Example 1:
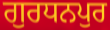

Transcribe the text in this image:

ਗੁਰਧਨਪੁਰ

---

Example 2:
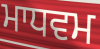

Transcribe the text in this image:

ਮਾਧਵਮ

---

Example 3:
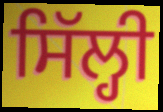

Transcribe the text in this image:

ਸਿੱਲ੍ਹੀ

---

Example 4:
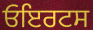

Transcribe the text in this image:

ਓਇਰਟਸ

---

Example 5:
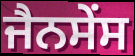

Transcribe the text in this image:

ਜੈਨਸੇਂਸ